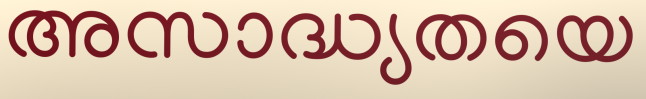
അസാദ്ധ്യതയെ